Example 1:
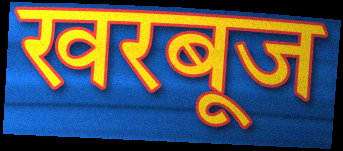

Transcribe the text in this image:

खरबूज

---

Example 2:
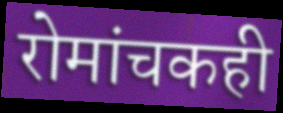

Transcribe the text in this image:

रोमांचकही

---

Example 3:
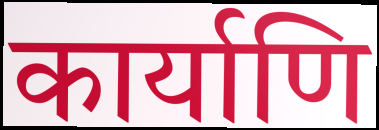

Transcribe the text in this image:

कार्याणि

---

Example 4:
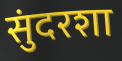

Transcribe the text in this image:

सुंदरशा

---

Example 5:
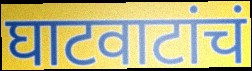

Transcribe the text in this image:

घाटवाटांचं